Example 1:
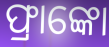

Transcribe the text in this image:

ଫ୍ରାଙ୍କୋ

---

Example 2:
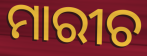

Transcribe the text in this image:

ମାରୀଚ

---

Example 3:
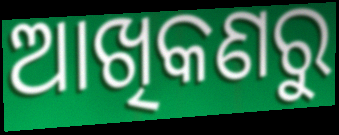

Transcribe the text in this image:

ଆଖିକଣରୁ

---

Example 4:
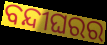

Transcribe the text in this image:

ବନ୍ଦୀଘରର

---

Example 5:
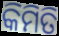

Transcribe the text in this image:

କିମିତି